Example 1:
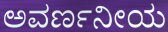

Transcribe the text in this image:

ಅವರ್ಣನೀಯ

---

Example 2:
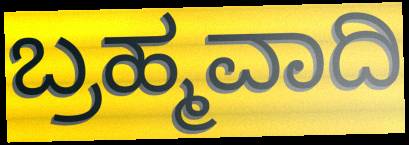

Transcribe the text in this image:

ಬ್ರಹ್ಮವಾದಿ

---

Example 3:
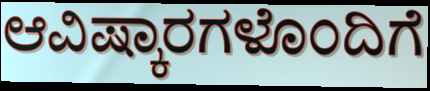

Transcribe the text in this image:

ಆವಿಷ್ಕಾರಗಳೊಂದಿಗೆ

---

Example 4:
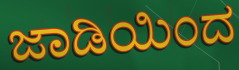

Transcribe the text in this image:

ಜಾಡಿಯಿಂದ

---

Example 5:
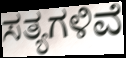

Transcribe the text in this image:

ಸತ್ಯಗಳಿವೆ